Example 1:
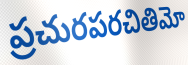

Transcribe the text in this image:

ప్రచురపరచితిమో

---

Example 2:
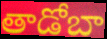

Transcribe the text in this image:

తాడోబా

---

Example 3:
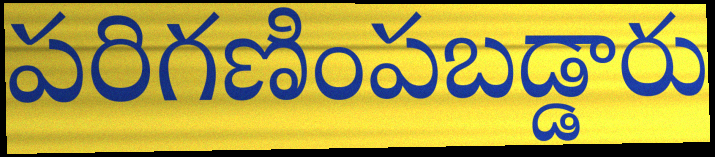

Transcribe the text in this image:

పరిగణింపబడ్డారు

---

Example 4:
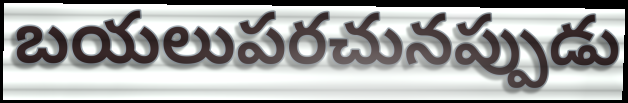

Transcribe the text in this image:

బయలుపరచునప్పుడు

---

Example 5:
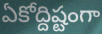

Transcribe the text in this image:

ఏకోద్దిష్టంగా